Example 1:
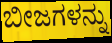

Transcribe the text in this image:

ಬೀಜಗಳನ್ನು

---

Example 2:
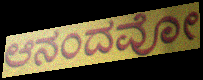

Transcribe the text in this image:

ಆನಂದವೋ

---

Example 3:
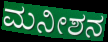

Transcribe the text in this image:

ಮನೀಶನ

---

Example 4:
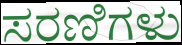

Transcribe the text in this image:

ಸರಣಿಗಳು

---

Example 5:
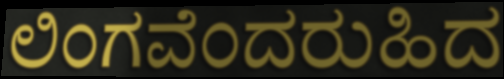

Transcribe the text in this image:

ಲಿಂಗವೆಂದರುಹಿದ